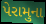
પેરામુના